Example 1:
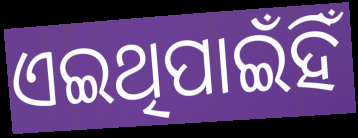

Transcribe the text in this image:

ଏଇଥିପାଇଁହିଁ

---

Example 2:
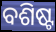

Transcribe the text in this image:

ବଶିଷ୍ଟ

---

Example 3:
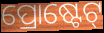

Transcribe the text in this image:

ପ୍ରୋଷ୍ଟେଟ୍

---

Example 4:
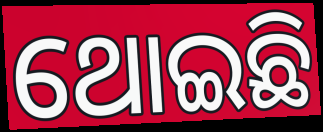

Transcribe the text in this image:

ଥୋଇଛି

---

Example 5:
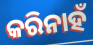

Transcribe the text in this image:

କରିନାହଁ